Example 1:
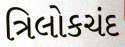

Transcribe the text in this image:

ત્રિલોકચંદ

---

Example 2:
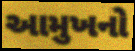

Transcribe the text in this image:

આમુખનો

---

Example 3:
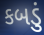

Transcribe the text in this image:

કબડું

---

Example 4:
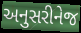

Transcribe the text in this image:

અનુસરીનેજ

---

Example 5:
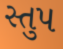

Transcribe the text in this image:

સ્તુપ